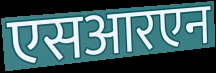
एसआरएन